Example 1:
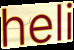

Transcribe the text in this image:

heli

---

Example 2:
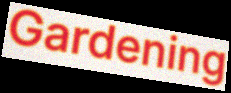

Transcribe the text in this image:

Gardening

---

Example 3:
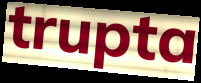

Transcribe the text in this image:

trupta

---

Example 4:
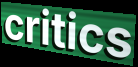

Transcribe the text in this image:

critics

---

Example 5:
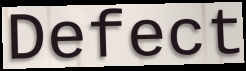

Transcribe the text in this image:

Defect